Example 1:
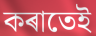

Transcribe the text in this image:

কৰাতেই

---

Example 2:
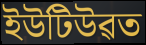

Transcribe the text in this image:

ইউটিউৱত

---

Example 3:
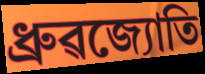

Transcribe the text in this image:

ধ্ৰুৱজ্যোতি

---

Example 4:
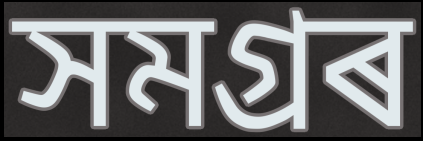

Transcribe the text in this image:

সমগ্ৰৰ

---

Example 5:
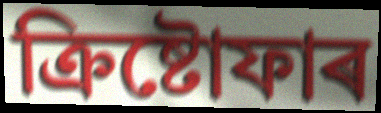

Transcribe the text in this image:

ক্ৰিষ্টোফাৰ